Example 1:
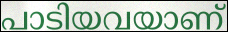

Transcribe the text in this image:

പാടിയവയാണ്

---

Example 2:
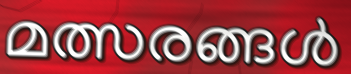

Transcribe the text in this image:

മത്സരങ്ങൾ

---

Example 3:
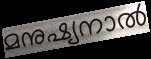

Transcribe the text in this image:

മനുഷ്യനാൽ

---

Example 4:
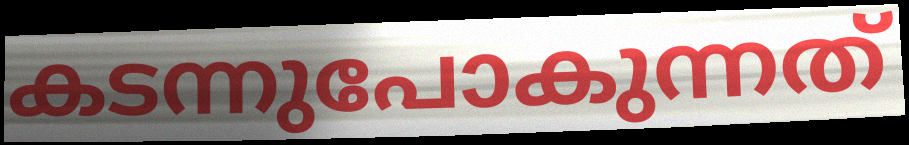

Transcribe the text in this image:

കടന്നുപോകുന്നത്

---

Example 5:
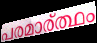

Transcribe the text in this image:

പരമാര്ത്ഥം